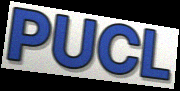
PUCL